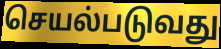
செயல்படுவது